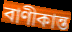
বাণীকান্ত